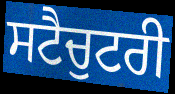
ਸਟੈਚੁਟਰੀ